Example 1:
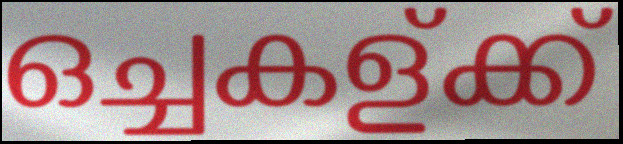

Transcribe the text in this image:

ഒച്ചകള്ക്ക്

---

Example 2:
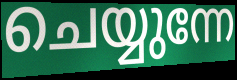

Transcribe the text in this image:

ചെയ്യുന്നേ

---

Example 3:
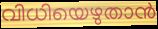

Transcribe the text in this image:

വിധിയെഴുതാൻ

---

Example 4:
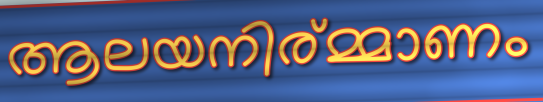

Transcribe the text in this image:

ആലയനിര്മ്മാണം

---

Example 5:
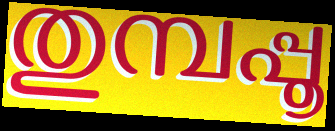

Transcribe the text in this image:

തുമ്പപ്പൂ